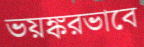
ভয়ঙ্করভাবে